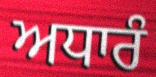
ਅਧਾਰੰ